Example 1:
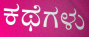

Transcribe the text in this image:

ಕಥೆಗಳು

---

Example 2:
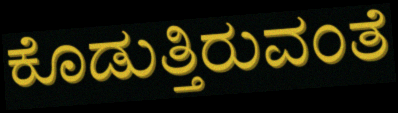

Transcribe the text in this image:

ಕೊಡುತ್ತಿರುವಂತೆ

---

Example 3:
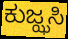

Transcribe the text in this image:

ಕುಜ್ಝಸಿ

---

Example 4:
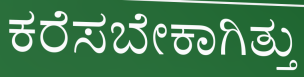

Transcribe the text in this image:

ಕರೆಸಬೇಕಾಗಿತ್ತು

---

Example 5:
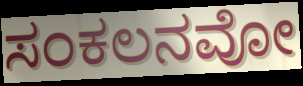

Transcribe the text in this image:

ಸಂಕಲನವೋ